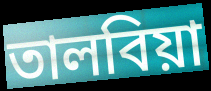
তালবিয়া